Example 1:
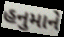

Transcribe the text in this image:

હનુમાને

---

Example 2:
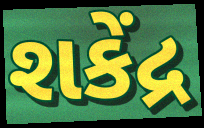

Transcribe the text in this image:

શકેંદ્ર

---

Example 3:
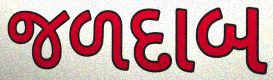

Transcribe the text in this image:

જળદાબ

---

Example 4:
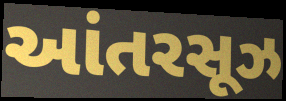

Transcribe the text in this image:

આંતરસૂઝ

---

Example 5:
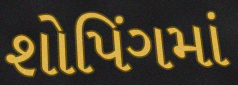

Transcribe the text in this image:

શોપિંગમાં